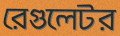
রেগুলেটর